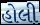
હોલી